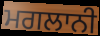
ਮਗਲਾਨੀ